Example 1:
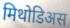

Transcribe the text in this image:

मिथोडिअस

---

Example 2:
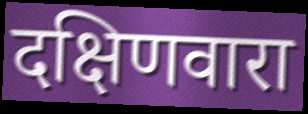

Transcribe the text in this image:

दक्षिणवारा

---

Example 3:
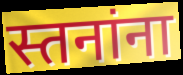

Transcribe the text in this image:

स्तनांना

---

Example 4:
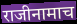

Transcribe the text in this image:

राजीनामाच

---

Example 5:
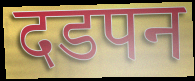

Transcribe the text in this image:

दडपन